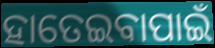
ହାତେଇବାପାଇଁ